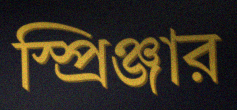
স্প্রিঞ্জার